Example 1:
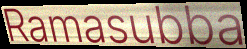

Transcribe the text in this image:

Ramasubba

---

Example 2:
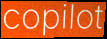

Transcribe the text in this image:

copilot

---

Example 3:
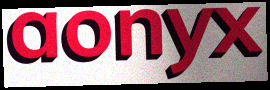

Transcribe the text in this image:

aonyx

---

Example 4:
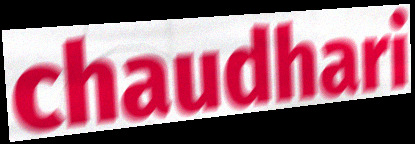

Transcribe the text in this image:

chaudhari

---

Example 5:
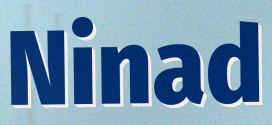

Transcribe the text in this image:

Ninad